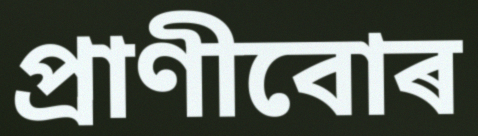
প্ৰাণীবোৰ